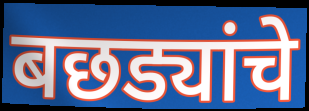
बछड्यांचे